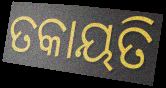
ତକାୟତି